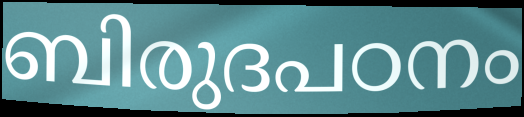
ബിരുദപഠനം